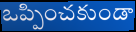
ఒప్పించకుండా